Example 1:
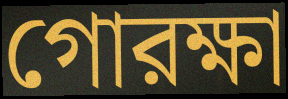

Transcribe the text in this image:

গোরক্ষা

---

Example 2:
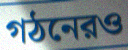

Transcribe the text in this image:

গঠনেরও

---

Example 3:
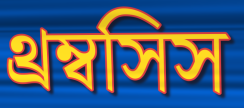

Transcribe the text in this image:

থ্রম্বসিস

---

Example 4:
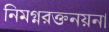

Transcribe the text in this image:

নিমগ্নরক্তনয়না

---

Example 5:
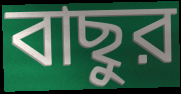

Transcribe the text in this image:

বাছুর